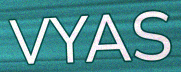
VYAS